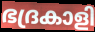
ഭദ്രകാളി